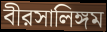
বীরসালিঙ্গম